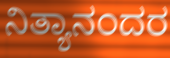
ನಿತ್ಯಾನಂದರ